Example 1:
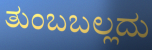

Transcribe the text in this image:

ತುಂಬಬಲ್ಲದು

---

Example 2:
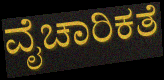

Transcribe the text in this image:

ವೈಚಾರಿಕತೆ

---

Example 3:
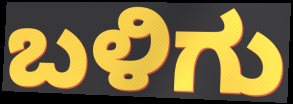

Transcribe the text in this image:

ಬಳಿಗು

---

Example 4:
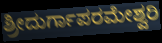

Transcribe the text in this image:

ಶ್ರೀದುರ್ಗಾಪರಮೇಶ್ವರಿ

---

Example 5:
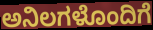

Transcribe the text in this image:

ಅನಿಲಗಳೊಂದಿಗೆ